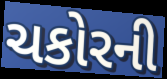
ચકોરની